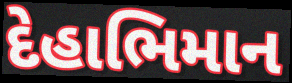
દેહાભિમાન